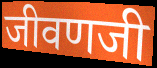
जीवणजी